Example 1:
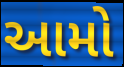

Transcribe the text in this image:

આમો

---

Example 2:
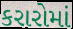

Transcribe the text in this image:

કરારોમાં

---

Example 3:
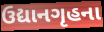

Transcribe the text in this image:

ઉદ્યાનગૃહના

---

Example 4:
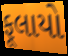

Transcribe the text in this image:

ફૂલાયો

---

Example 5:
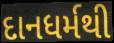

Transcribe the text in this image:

દાનધર્મથી